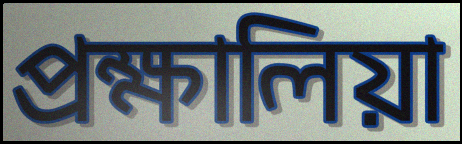
প্রক্ষালিয়া